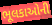
ભૂલકાઓની